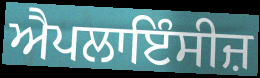
ਐਪਲਾਇੰਸੀਜ਼